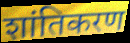
शांतिकरण